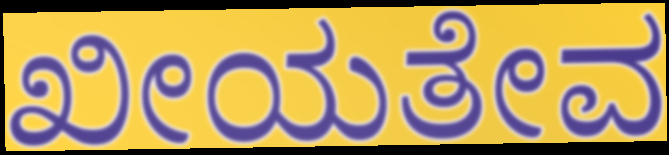
ಖೀಯತೇವ